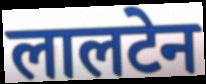
लालटेन